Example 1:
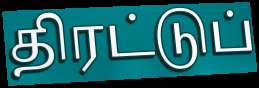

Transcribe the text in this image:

திரட்டுப்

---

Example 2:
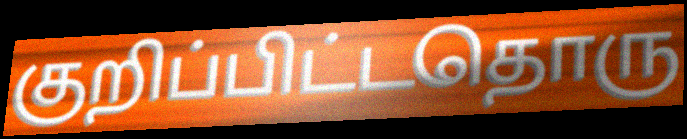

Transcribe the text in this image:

குறிப்பிட்டதொரு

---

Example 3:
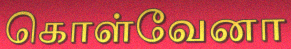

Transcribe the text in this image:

கொள்வேனா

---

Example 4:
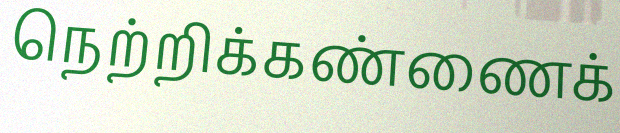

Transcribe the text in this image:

நெற்றிக்கண்ணைக்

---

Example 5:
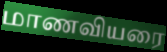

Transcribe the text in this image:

மாணவியரை